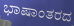
ಭಾಷಾಂತರದ